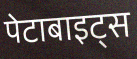
पेटाबाइट्स